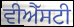
ਵੀਐੱਸਟੀ